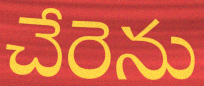
చేరెను